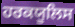
ਹਰਕਯੂਲਿਸ